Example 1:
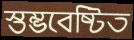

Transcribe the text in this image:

স্তম্ভবেষ্টিত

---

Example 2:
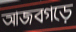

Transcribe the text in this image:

আজবগড়ে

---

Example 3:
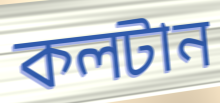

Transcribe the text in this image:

কলটান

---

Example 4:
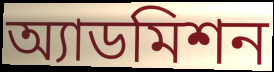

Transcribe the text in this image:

অ্যাডমিশন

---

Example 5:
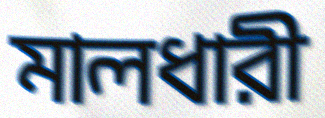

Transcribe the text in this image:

মালধারী